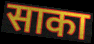
साका